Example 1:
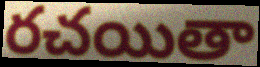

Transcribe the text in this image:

రచయితా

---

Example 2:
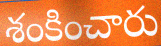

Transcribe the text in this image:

శంకించారు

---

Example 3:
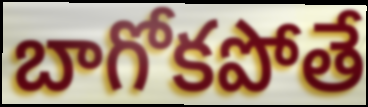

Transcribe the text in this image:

బాగోకపోతే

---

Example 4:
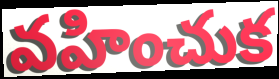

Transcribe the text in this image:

వహించుక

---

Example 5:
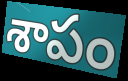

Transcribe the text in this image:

శాపం